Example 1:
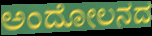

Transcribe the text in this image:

ಅಂದೋಲನದ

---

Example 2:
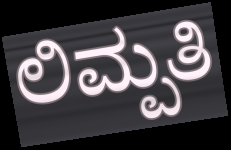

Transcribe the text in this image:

ಲಿಮ್ಪತಿ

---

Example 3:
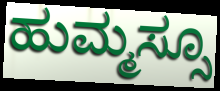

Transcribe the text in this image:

ಹುಮ್ಮಸ್ಸೂ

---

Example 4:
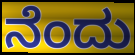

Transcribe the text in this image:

ನೆಂದು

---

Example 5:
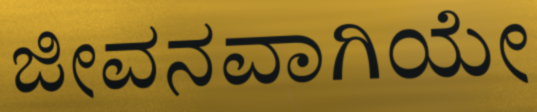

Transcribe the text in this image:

ಜೀವನವಾಗಿಯೇ